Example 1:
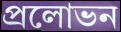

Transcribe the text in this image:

প্ৰলোভন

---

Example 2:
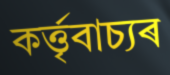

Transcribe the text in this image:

কৰ্ত্তৃবাচ্যৰ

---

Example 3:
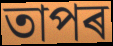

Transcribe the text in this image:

তাপৰ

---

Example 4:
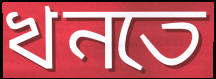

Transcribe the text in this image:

খনতে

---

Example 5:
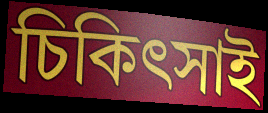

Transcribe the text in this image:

চিকিৎসাই